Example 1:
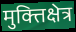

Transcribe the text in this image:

मुक्तिक्षेत्र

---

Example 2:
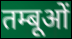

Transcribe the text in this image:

तम्बूओं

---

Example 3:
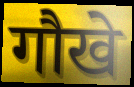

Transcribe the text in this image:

गौखे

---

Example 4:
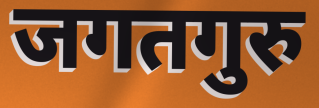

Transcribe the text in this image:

जगतगुरु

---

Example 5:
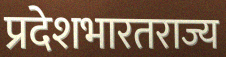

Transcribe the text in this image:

प्रदेशभारतराज्य